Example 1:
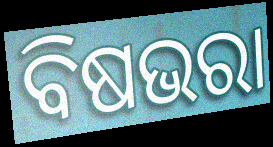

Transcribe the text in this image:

ବିଷଭରା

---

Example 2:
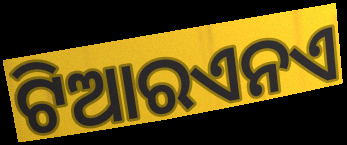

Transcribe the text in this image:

ଟିଆରଏନଏ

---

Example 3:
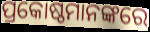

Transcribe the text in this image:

ପ୍ରକୋଷ୍ଠମାନଙ୍କରେ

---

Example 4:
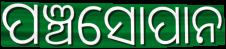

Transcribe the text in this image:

ପଞ୍ଚସୋପାନ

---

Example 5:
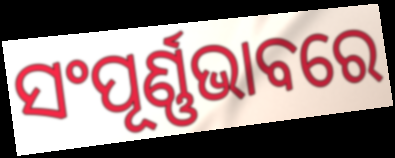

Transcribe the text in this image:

ସଂପୂର୍ଣ୍ଣଭାବରେ